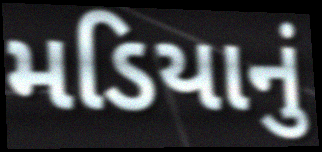
મડિયાનું